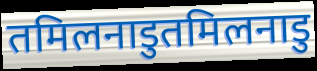
तमिलनाडुतमिलनाडु